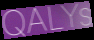
QALYs